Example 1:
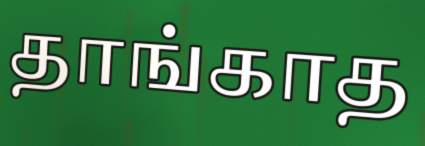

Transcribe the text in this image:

தாங்காத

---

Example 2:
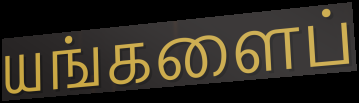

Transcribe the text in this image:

யங்களைப்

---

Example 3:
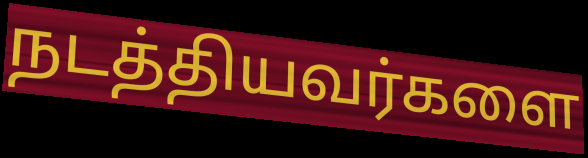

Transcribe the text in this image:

நடத்தியவர்களை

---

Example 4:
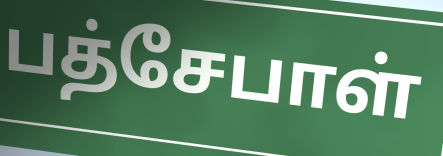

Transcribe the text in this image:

பத்சேபாள்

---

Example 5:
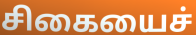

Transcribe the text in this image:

சிகையைச்